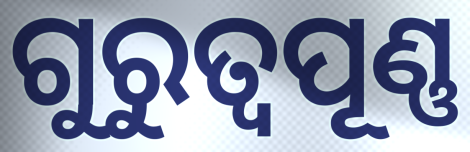
ଗୁରୁତ୍ବପୂଣ୍ଣ